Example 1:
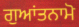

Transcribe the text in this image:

ਗੁਆਂਤਨਾਮੋ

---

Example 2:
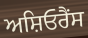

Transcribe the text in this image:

ਅਸ਼ਿਓਰੈਂਸ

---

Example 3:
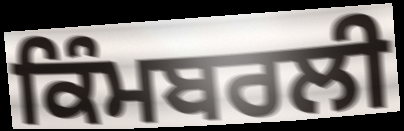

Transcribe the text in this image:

ਕਿੰਮਬਰਲੀ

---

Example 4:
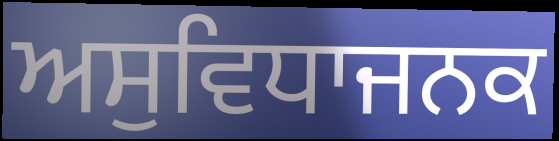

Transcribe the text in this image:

ਅਸੁਵਿਧਾਜਨਕ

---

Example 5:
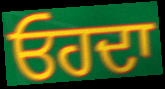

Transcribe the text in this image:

ਓਹਦਾ